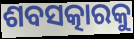
ଶବସତ୍କାରକୁ